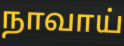
நாவாய்